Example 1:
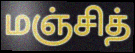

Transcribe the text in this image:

மஞ்சித்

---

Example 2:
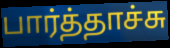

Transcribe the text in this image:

பார்த்தாச்சு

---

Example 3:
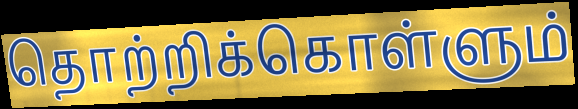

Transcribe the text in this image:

தொற்றிக்கொள்ளும்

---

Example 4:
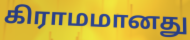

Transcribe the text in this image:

கிராமமானது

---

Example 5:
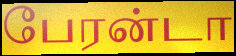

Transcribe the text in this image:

பேரன்டா